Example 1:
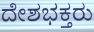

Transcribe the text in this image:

ದೇಶಭಕ್ತರು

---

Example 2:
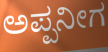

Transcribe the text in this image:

ಅಪ್ಪನೀಗ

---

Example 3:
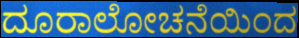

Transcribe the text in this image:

ದೂರಾಲೋಚನೆಯಿಂದ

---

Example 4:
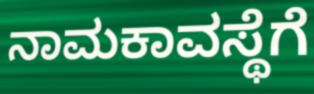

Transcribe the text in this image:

ನಾಮಕಾವಸ್ಥೆಗೆ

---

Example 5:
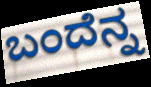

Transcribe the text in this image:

ಬಂದೆನ್ನ